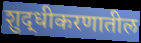
शुद्धीकरणातील